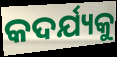
କଦର୍ଯ୍ୟକୁ